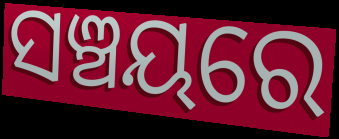
ସଞ୍ଚୟରେ